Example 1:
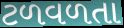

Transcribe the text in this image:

ટળવળતા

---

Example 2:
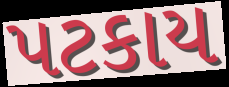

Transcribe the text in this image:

પટકાય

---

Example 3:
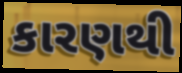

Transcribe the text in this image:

કારણથી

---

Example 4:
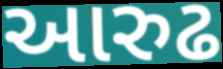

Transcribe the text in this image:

આરુઢ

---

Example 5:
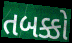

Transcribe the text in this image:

તબક્કો